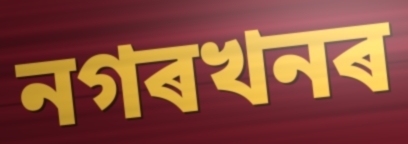
নগৰখনৰ